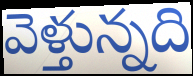
వెళ్తున్నది